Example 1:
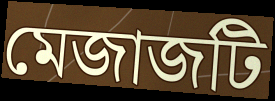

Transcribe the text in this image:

মেজাজটি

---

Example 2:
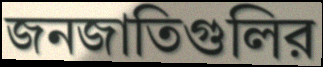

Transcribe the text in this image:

জনজাতিগুলির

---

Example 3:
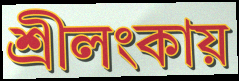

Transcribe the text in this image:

শ্রীলংকায়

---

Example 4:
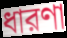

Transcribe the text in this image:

ধারণা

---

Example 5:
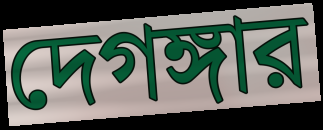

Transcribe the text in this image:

দেগঙ্গার